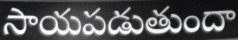
సాయపడుతుందా